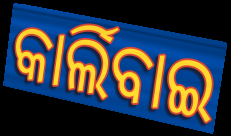
କାର୍ଲିବାଇ